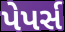
પેપર્સ